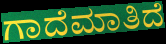
ಗಾದೆಮಾತಿದೆ